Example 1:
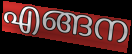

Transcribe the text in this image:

എങ്ങന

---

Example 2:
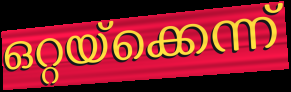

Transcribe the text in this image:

ഒറ്റയ്‌ക്കെന്ന്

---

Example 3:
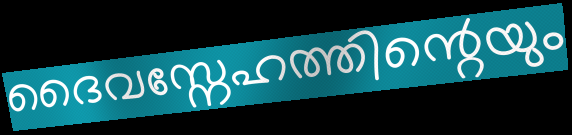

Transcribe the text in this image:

ദൈവസ്നേഹത്തിന്റെയും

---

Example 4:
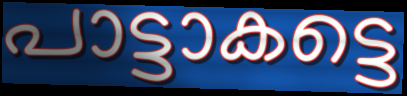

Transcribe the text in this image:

പാട്ടാകട്ടെ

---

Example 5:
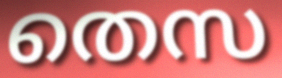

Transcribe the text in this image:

തെസ